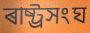
ৰাষ্ট্ৰসংঘ